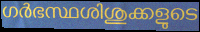
ഗർഭസ്ഥശിശുക്കളുടെ